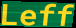
Leff